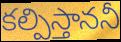
కల్పిస్తాననీ